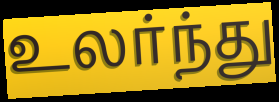
உலர்ந்து